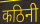
कठिनी